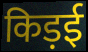
किड़ई